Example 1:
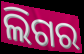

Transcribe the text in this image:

ଲିଗର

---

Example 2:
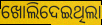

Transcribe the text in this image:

ଖୋଲିଦେଇଥିଲା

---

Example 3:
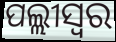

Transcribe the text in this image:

ପଲ୍ଲୀସ୍ଵର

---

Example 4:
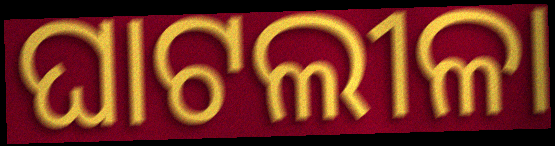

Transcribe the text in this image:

ଘାଟଲୀଳା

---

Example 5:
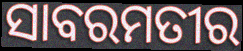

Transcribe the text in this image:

ସାବରମତୀର